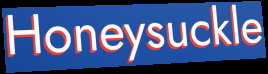
Honeysuckle